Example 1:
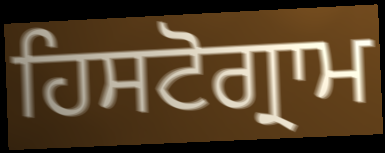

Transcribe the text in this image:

ਹਿਸਟੋਗ੍ਰਾਮ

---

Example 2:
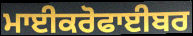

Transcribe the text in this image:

ਮਾਈਕਰੋਫਾਈਬਰ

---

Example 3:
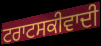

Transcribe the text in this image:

ਟਰਾਟਸਕੀਵਾਦੀ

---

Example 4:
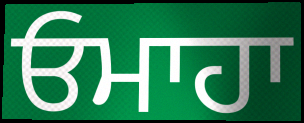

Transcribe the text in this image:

ਓਮਾਹਾ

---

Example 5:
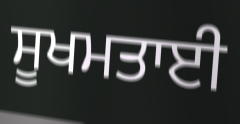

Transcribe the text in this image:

ਸੂਖਮਤਾਈ